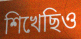
শিখেছিও